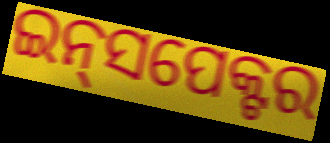
ଇନ୍‍ସପେକ୍ଟର